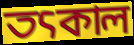
তৎকাল